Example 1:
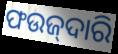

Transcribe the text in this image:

ଫଉଜ୍‌ଦାରି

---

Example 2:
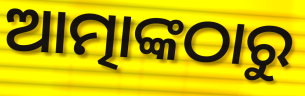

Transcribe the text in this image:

ଆତ୍ମାଙ୍କଠାରୁ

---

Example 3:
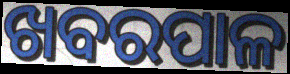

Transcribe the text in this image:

ଖବରପାଳ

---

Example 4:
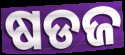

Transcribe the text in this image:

ଷଡଜ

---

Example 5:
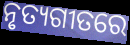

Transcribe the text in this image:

ନୃତ୍ୟଗୀତରେ